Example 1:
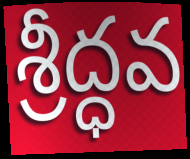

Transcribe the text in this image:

శ్రీద్ధవ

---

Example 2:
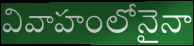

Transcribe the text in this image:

వివాహంలోనైనా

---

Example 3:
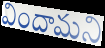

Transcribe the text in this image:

విందామని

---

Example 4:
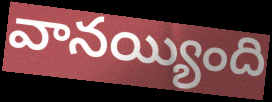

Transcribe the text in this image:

వానయ్యింది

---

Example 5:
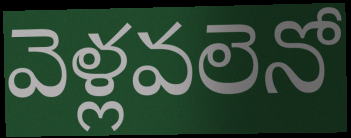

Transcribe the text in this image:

వెళ్లవలెనో